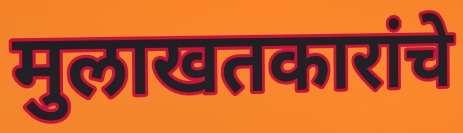
मुलाखतकारांचे